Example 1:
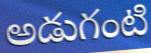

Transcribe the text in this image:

అడుగంటి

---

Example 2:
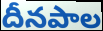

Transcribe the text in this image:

దీనపాల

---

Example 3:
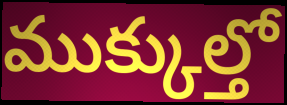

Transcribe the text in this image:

ముక్కుల్తో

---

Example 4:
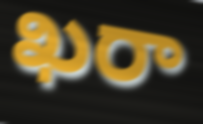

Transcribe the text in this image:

ఖరా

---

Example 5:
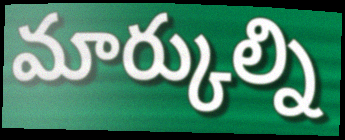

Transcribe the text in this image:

మార్కుల్ని